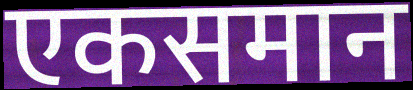
एकसमान